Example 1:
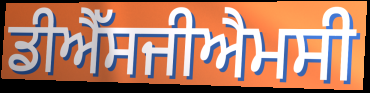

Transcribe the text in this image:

ਡੀਐੱਸਜੀਐਮਸੀ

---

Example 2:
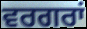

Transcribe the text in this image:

ਵਰਗਰਾਂ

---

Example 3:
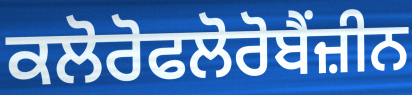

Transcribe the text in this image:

ਕਲੋਰੋਫਲੋਰੋਬੈਂਜ਼ੀਨ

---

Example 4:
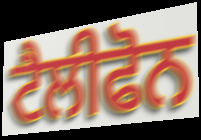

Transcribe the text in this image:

ਟੈਲੀਫੋਨ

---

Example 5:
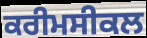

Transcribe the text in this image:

ਕਰੀਮਸੀਕਲ